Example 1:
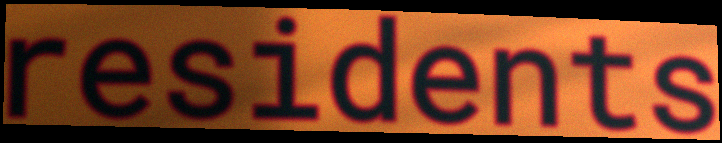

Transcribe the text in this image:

residents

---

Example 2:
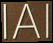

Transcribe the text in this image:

IAI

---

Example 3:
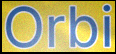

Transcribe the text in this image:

Orbi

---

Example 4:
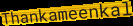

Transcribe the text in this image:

Thankameenkal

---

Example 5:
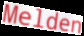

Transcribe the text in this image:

Melden